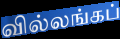
வில்லங்கப்